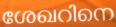
ശേഖറിനെ